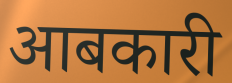
आबकारी